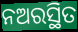
ନଅରସ୍ଥିତ